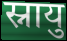
स्नायु